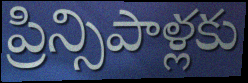
ప్రిన్సిపాళ్లకు